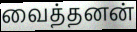
வைத்தனன்